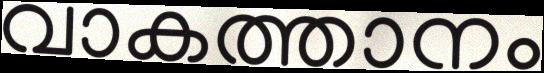
വാകത്താനം